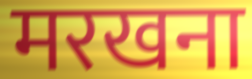
मरखना